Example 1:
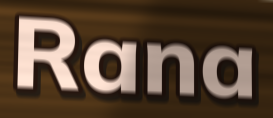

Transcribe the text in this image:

Rana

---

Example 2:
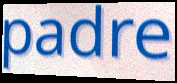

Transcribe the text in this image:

padre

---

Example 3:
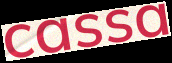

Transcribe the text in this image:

cassa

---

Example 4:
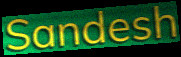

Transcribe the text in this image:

Sandesh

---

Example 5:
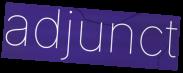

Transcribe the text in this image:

adjunct